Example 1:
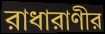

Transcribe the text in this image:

রাধারাণীর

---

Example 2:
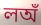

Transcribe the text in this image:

লঅঁ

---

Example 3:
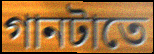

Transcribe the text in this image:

গানটাতে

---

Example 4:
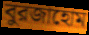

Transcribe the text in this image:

বুরজাহোম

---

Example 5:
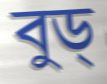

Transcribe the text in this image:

বুড্